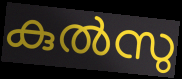
കുൽസു